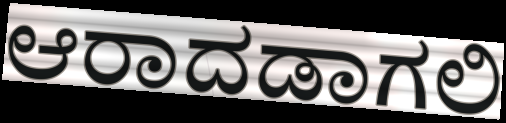
ಆರಾದಡಾಗಲಿ